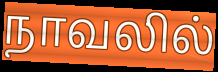
நாவலில்